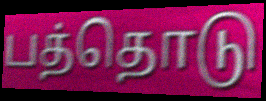
பத்தொடு